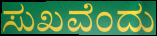
ಸುಖವೆಂದು